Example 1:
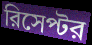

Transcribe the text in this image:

রিসেপ্টর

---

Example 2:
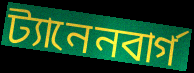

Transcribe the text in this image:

ট্যানেনবার্গ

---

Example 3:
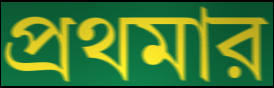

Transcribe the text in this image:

প্রথমার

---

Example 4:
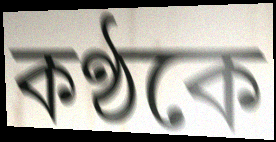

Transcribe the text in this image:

কণ্ঠকে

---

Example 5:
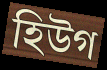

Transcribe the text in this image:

হিউগ